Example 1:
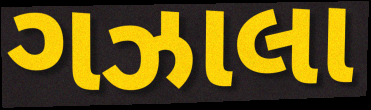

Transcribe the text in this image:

ગઝાલા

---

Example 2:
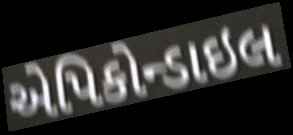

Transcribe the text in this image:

એપિકોન્ડાઇલ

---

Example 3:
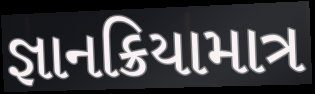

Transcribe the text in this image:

જ્ઞાનક્રિયામાત્ર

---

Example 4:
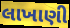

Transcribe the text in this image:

લાખાણી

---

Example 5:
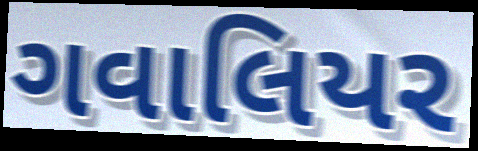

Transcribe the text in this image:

ગવાલિયર